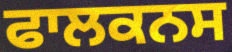
ਫਾਲਕਨਸ